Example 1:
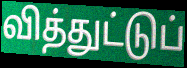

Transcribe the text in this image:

வித்துட்டுப்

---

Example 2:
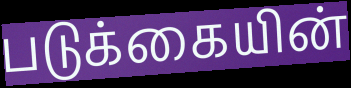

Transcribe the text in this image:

படுக்கையின்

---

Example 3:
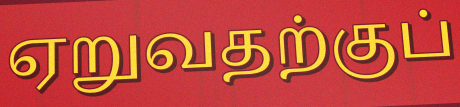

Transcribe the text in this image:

ஏறுவதற்குப்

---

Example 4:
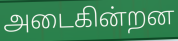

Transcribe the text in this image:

அடைகின்றன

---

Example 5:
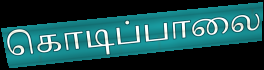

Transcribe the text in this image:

கொடிப்பாலை